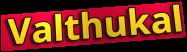
Valthukal